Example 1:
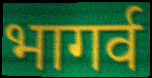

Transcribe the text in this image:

भागर्व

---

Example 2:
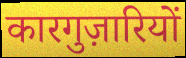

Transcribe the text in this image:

कारगुज़ारियों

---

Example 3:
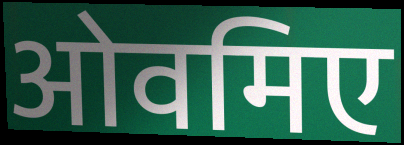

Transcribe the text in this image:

ओवमिए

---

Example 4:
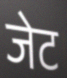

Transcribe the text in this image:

जेट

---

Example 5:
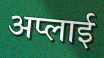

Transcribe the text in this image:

अप्लाई